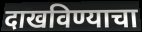
दाखविण्याचा